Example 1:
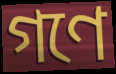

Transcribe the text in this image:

গণে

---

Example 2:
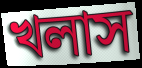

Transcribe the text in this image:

খলাস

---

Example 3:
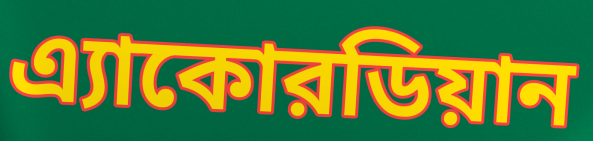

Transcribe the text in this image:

এ্যাকোরডিয়ান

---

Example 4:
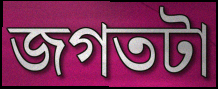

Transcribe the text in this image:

জগতটা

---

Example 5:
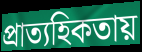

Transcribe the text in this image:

প্রাত্যহিকতায়